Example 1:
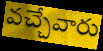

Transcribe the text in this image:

వచ్చేవారు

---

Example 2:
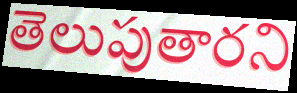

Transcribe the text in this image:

తెలుపుతారని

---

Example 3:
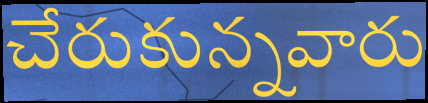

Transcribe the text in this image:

చేరుకున్నవారు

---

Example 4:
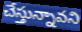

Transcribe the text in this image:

చేస్తున్నావని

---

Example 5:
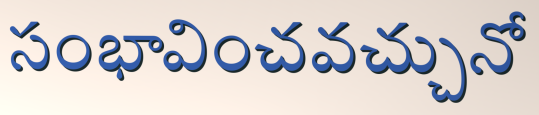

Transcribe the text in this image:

సంభావించవచ్చునో